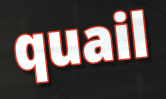
quail